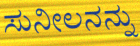
ಸುನೀಲನನ್ನು